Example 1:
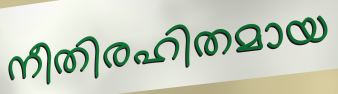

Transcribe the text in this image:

നീതിരഹിതമായ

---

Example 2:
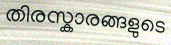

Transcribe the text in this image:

തിരസ്കാരങ്ങളുടെ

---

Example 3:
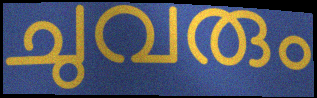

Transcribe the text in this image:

ചുവരും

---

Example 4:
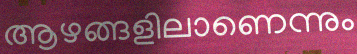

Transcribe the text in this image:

ആഴങ്ങളിലാണെന്നും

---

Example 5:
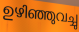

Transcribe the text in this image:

ഉഴിഞ്ഞുവച്ചു